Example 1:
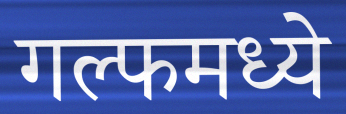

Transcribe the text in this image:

गल्फमध्ये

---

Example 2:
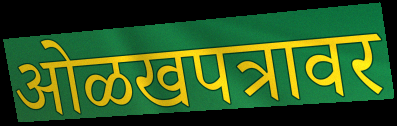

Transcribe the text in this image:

ओळखपत्रावर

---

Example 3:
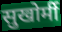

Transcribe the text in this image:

सुखोर्मी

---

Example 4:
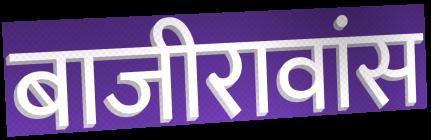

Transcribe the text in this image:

बाजीरावांस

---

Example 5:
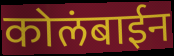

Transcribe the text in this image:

कोलंबाईन